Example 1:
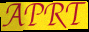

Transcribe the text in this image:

APRT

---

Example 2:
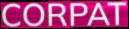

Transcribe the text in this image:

CORPAT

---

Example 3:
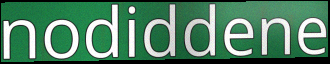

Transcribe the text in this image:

nodiddene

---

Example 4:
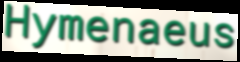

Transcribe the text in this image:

Hymenaeus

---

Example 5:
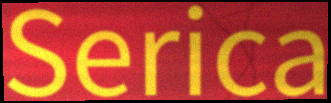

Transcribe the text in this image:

Serica